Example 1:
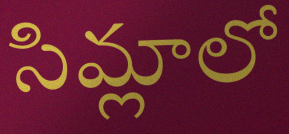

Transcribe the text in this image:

సిమ్లాలో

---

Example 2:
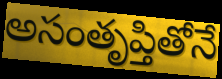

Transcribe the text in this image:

అసంతృప్తితోనే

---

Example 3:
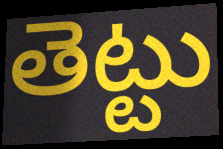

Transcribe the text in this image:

తెట్టు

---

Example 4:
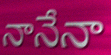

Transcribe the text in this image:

నానేనా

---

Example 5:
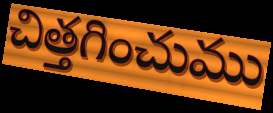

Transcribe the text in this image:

చిత్తగించుము